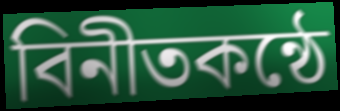
বিনীতকন্ঠে